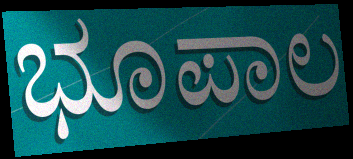
ಭೂಪಾಲ